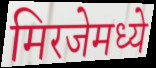
मिरजेमध्ये